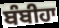
ਬੰਬੀਹਾ